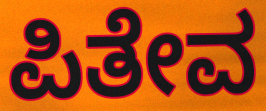
ಪಿತೇವ